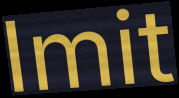
Imit